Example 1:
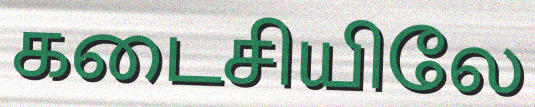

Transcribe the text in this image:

கடைசியிலே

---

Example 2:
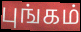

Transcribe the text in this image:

புங்கம்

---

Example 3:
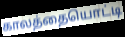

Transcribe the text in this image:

காலத்தையொட்டி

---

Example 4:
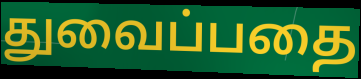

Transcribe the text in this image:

துவைப்பதை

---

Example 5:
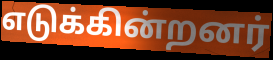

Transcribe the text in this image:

எடுக்கின்றனர்